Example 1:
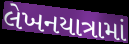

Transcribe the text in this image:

લેખનયાત્રામાં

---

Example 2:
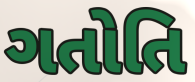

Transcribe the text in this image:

ગતોતિ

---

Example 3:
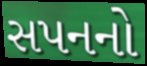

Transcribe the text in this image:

સપનનો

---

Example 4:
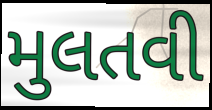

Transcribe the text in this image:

મુલતવી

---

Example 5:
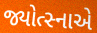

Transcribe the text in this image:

જ્યોત્સ્નાએ